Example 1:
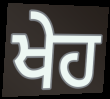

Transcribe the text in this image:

ਖੇਹ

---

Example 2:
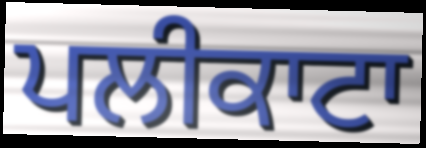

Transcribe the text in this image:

ਪਲੀਕਾਟਾ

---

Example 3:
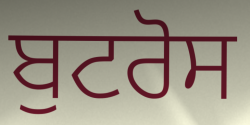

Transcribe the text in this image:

ਬੁਟਰੋਸ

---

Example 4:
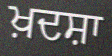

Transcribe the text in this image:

ਖ਼ਦਸ਼ਾ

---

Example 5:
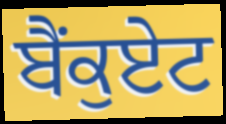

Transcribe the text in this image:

ਬੈਂਕੁਏਟ